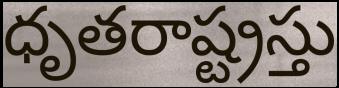
ధృతరాష్ట్రస్తు